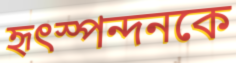
হৃৎস্পন্দনকে